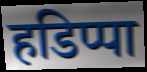
हडिप्पा